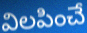
విలపించే